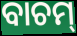
ବାଚମ୍